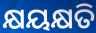
କ୍ଷୟକ୍ଷତି